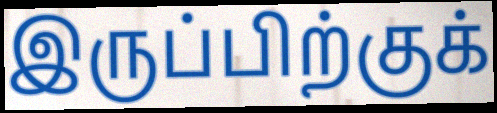
இருப்பிற்குக்